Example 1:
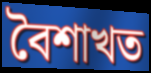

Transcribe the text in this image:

বৈশাখত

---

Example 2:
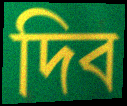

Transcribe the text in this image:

দিব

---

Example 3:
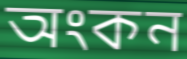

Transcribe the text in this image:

অংকন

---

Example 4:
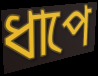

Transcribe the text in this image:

ধাপে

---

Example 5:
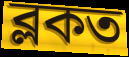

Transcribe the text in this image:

ব্লকত